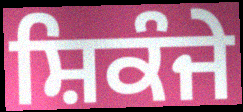
ਸ਼ਿਕੰਜੇ